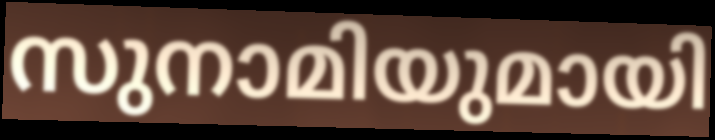
സുനാമിയുമായി